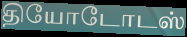
தியோடோடஸ்